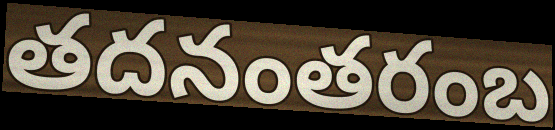
తదనంతరంబ